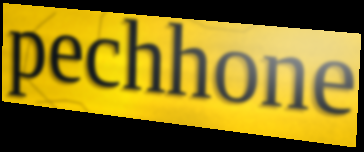
pechhone